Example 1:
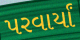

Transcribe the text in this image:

પરવાર્યાં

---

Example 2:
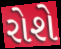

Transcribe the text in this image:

રોશે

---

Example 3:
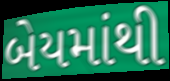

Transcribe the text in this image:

બેયમાંથી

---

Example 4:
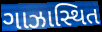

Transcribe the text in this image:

ગાઝાસ્થિત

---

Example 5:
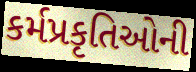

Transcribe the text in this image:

કર્મપ્રકૃતિઓની